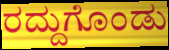
ರದ್ದುಗೊಂಡು